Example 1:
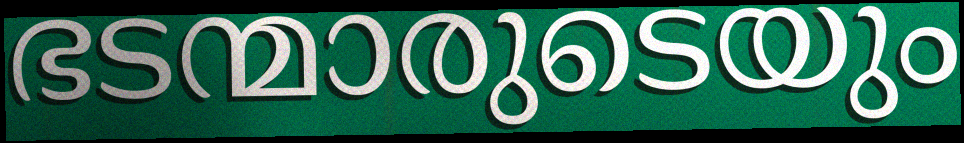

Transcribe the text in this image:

ഭടന്മാരുടെയും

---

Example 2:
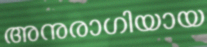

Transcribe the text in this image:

അനുരാഗിയായ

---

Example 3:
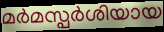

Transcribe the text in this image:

മർമസ്പർശിയായ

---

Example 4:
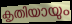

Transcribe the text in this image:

കൃതിയായും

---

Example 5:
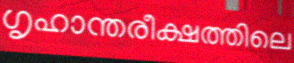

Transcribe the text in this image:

ഗൃഹാന്തരീക്ഷത്തിലെ